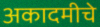
अकादमीचे